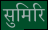
सुमिरि